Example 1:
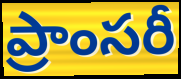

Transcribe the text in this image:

ప్రాంసరీ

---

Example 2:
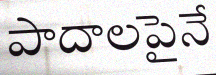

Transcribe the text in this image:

పాదాలపైనే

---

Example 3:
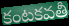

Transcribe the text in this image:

కంటకవతీ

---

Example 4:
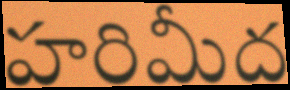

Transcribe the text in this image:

హరిమీద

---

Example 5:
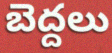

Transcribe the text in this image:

బెద్దలు